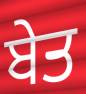
ਬੇਤ